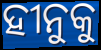
ହୀନୁକୁ